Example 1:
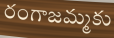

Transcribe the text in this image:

రంగాజమ్మకు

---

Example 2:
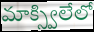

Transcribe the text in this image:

మాక్స్విలేలో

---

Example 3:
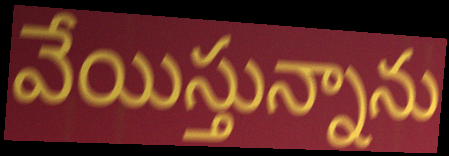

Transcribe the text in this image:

వేయిస్తున్నాను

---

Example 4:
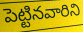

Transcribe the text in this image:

పెట్టినవారిని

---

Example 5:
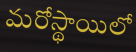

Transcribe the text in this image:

మరోస్థాయిలో